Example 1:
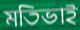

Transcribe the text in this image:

মতিভাই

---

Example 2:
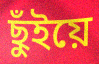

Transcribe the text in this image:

ছুঁইয়ে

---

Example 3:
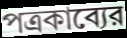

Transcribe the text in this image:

পত্রকাব্যের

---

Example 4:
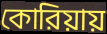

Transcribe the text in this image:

কোরিয়ায়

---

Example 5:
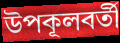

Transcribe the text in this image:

উপকূলবর্তী